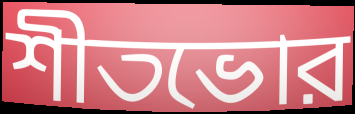
শীতভোর